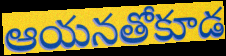
ఆయనతోకూడ